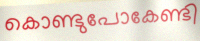
കൊണ്ടുപോകേണ്ടി